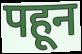
पहून